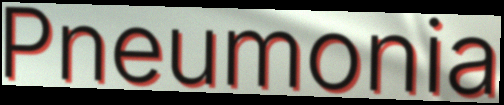
Pneumonia